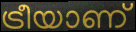
ട്രീയാണ്